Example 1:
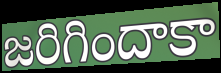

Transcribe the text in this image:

జరిగిందాకా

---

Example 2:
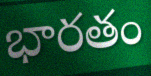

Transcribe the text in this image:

భారతం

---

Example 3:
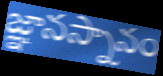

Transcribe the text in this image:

జ్ఞానస్నానం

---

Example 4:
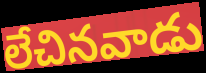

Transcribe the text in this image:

లేచినవాడు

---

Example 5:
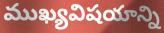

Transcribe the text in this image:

ముఖ్యవిషయాన్ని